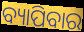
ବ୍ୟାପିବାର